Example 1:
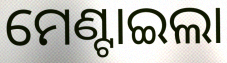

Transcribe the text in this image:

ମେଣ୍ଟାଇଲା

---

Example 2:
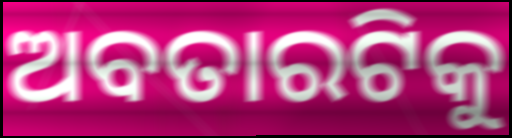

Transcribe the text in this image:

ଅବତାରଟିକୁ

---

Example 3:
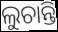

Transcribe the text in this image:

ଲୁଚାନ୍ତି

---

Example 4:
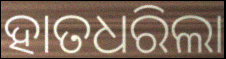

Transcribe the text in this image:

ହାତଧରିଲା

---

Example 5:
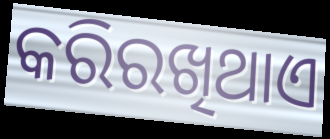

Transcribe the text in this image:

କରିରଖିଥାଏ